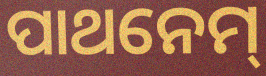
ପାଥନେମ୍